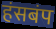
हंसबंप